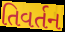
તિવર્તન